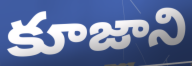
కూజాని